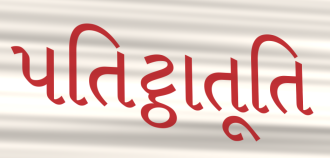
પતિટ્ઠાતૂતિ